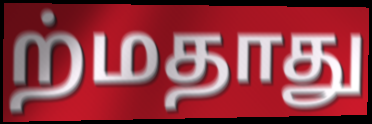
ற்மதாது